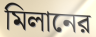
মিলানের